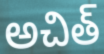
అచిత్